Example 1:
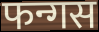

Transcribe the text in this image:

फन्गस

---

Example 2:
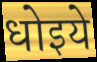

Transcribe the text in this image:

धोइये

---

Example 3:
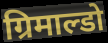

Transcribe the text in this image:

ग्रिमाल्डो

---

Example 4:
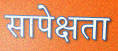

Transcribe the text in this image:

सापेक्षता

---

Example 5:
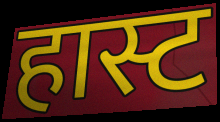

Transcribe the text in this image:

हास्ट